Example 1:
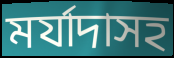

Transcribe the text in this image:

মর্যাদাসহ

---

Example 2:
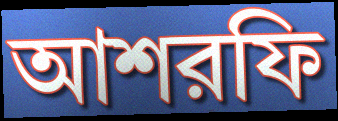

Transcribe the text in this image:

আশরফি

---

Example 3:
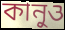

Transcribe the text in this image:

কানুও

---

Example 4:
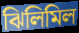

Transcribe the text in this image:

ঝিলিমিল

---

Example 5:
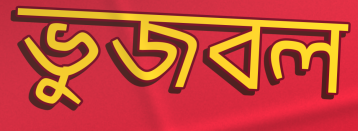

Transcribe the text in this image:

ভুজবল